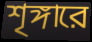
শৃঙ্গারে